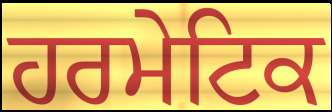
ਹਰਮੇਟਿਕ